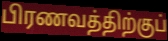
பிரணவத்திற்குப்